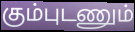
கும்புடணும்